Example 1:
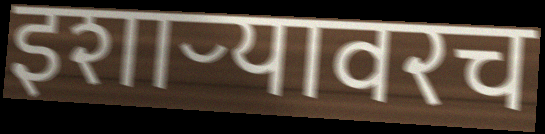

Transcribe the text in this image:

इशाऱ्यावरच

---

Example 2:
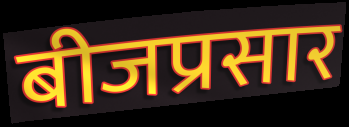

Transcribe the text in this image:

बीजप्रसार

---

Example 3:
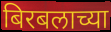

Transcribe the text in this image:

बिरबलाच्या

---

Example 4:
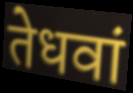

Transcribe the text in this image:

तेधवां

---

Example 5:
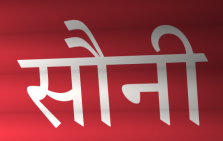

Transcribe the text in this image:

सौनी